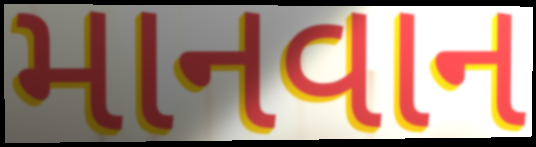
માનવાન